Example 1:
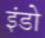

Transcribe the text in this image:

इंडो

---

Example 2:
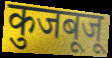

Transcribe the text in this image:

कुजबूजू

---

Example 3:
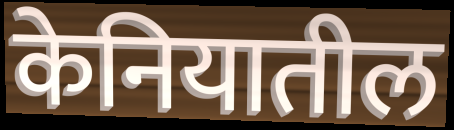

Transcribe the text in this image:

केनियातील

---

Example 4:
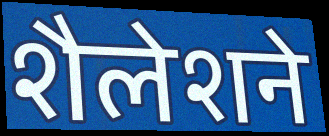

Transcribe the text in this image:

शैलेशने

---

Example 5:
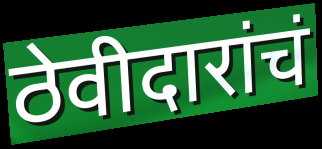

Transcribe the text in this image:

ठेवीदारांचं